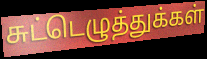
சுட்டெழுத்துக்கள்